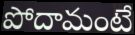
పోదామంటే